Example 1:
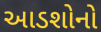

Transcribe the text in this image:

આડશોનો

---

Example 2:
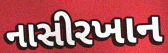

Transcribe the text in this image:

નાસીરખાન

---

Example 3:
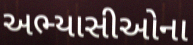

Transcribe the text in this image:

અભ્યાસીઓના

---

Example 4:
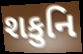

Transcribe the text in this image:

શકુનિ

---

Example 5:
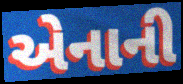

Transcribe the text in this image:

એનાની